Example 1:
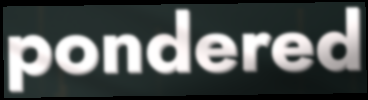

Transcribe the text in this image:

pondered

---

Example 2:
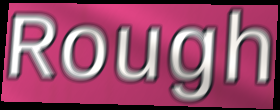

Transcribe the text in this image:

Rough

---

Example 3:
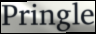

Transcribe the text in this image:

Pringle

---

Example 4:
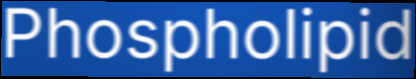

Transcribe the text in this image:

Phospholipid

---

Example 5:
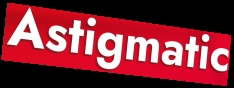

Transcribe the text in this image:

Astigmatic